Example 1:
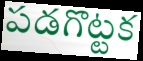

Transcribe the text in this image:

పడగొట్టక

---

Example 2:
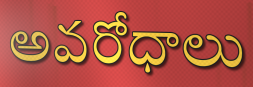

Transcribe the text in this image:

అవరోధాలు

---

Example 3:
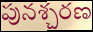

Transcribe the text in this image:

పునశ్చరణ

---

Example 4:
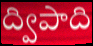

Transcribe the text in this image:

ద్విపాది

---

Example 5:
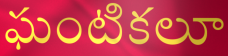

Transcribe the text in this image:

ఘంటికలూ